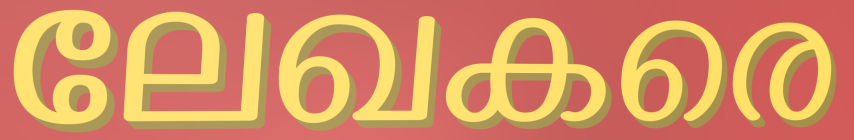
ലേഖകരെ